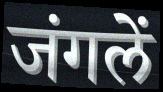
जंगलें